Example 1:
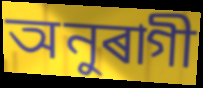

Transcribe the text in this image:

অনুৰাগী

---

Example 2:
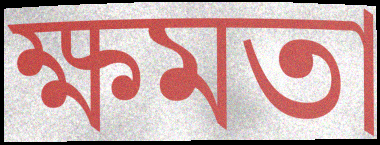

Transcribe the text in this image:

ক্ষমতা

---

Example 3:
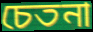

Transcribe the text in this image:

চেতনা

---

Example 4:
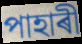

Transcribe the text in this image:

পাহাৰী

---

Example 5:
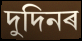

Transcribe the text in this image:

দুদিনৰ